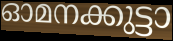
ഓമനക്കുട്ടാ